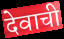
देवाची